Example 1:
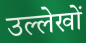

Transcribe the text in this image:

उल्लेखों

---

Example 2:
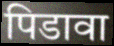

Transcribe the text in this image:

पिडावा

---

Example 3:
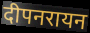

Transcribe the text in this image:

दीपनरायन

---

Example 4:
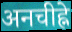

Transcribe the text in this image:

अनचीह्ने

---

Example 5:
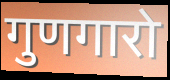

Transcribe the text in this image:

गुणगारो